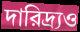
দারিদ্র্যও